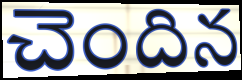
చెందిన